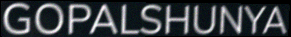
GOPALSHUNYA